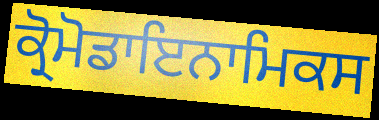
ਕ੍ਰੋਮੋਡਾਇਨਾਮਿਕਸ